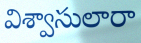
విశ్వాసులారా